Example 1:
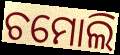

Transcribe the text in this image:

ଚମୋଲି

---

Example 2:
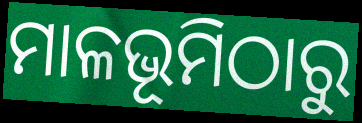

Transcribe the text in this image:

ମାଳଭୂମିଠାରୁ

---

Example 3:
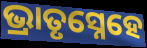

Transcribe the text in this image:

ଭ୍ରାତୃସ୍ନେହେ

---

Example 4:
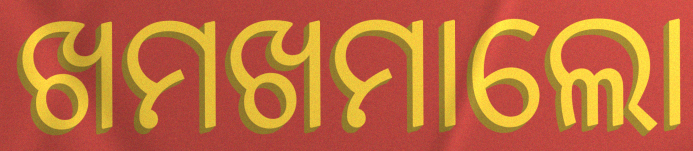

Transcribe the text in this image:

ଖମଖମାଲୋ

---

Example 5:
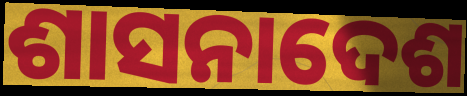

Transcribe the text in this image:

ଶାସନାଦେଶ